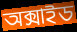
অক্সাইড